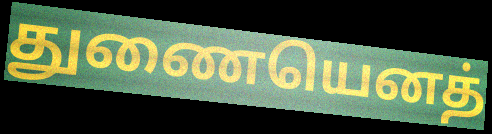
துணையெனத்